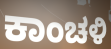
ಕಾಂಚಳಿ